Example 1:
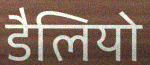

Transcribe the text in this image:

डैलियो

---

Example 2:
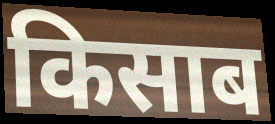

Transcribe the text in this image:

किसाब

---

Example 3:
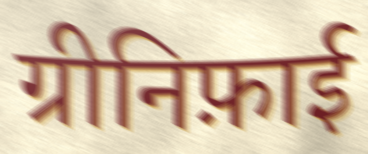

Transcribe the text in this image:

ग्रीनिफ़ाई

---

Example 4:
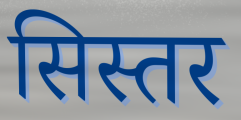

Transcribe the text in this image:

सिस्तर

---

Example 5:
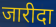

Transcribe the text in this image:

जारीदा